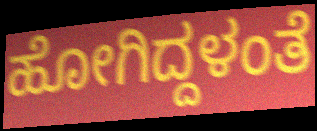
ಹೋಗಿದ್ದಳಂತೆ